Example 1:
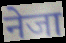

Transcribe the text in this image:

नेजा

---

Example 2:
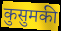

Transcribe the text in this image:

कुसुमकी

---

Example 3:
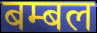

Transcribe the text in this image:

बम्बल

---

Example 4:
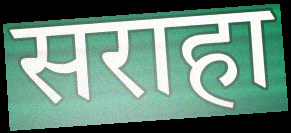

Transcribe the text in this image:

सराहा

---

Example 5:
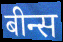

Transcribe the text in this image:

बीन्स